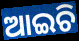
ଆଇଚି